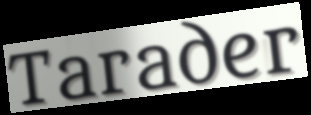
Tarader